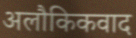
अलौकिकवाद